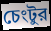
চেংটুর